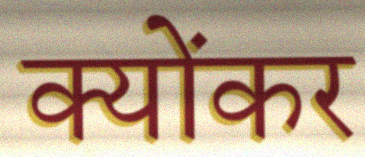
क्योंकर